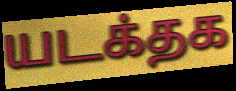
யடக்தக